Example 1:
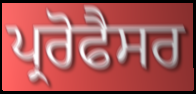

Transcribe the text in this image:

ਪ੍ਰਰੋਫੈਸਰ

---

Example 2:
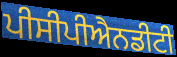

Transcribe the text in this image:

ਪੀਸੀਪੀਐਨਡੀਟੀ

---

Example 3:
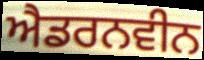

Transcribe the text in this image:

ਐਡਰਨਵੀਨ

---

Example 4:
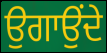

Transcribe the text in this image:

ਉਗਾਉਂਦੇ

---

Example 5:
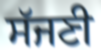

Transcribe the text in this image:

ਸੱਜਣੀ